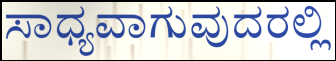
ಸಾಧ್ಯವಾಗುವುದರಲ್ಲಿ